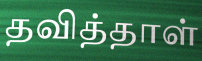
தவித்தாள்